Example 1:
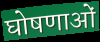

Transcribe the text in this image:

घोषणाओं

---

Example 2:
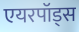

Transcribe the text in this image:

एयरपॉड्स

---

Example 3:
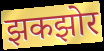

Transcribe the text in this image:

झकझोर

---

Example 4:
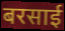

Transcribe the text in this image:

बरसाई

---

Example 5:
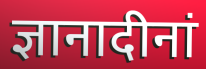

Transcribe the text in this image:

ज्ञानादीनां